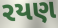
રયણ